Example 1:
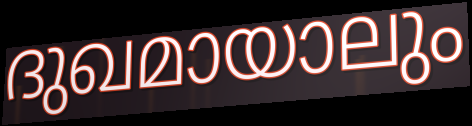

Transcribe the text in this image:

ദുഖമായാലും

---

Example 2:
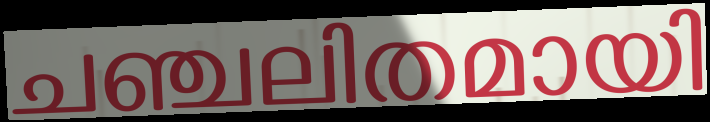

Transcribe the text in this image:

ചഞ്ചലിതമായി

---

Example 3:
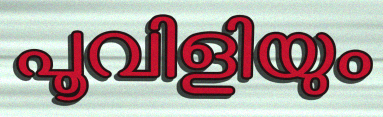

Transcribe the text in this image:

പൂവിളിയും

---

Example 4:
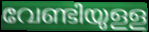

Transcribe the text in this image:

വേണ്ടിയുളള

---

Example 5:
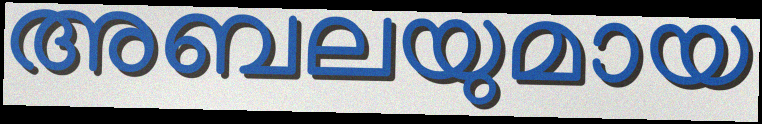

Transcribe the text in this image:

അബലയുമായ